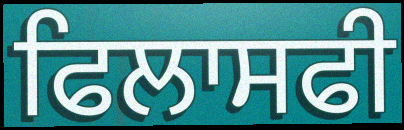
ਫਿਲਾਸਫੀ